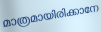
മാത്രമായിരിക്കാനേ